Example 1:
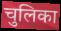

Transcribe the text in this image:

चुलिका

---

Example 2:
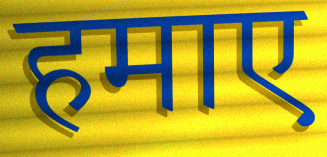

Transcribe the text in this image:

हमाए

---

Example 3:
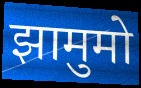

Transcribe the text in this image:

झामुमो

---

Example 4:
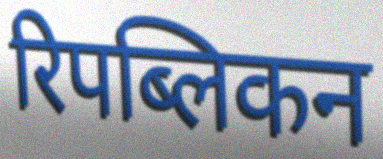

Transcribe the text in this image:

रिपब्लिकन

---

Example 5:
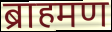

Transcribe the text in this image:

ब्राहमण